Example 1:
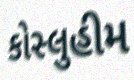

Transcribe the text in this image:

કોસ્લુહીમ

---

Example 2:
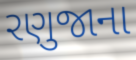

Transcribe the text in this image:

રણુજાના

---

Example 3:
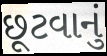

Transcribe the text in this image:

છૂટવાનું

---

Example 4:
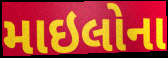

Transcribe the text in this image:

માઇલોના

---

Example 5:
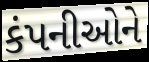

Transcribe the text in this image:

કંપનીઓને